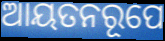
ଆୟତନରୂପେ